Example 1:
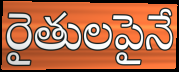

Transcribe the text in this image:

రైతులపైనే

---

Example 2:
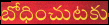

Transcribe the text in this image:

బోధించుటకు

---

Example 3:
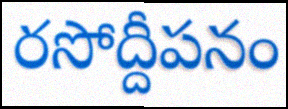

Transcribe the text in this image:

రసోద్దీపనం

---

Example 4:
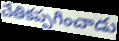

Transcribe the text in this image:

చేతికప్పగించాడు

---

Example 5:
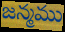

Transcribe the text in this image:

జన్మము